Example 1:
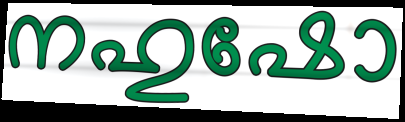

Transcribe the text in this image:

നഹുഷോ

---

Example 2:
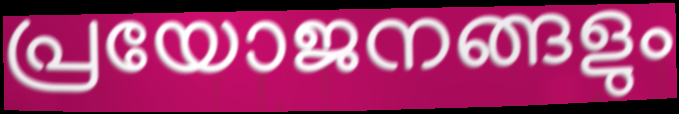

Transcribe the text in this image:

പ്രയോജനങ്ങളും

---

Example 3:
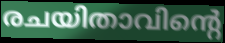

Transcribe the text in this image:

രചയിതാവിന്റെ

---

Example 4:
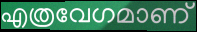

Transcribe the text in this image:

എത്രവേഗമാണ്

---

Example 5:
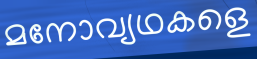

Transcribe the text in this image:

മനോവ്യഥകളെ